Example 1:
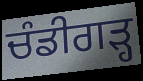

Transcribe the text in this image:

ਚੰਡੀਗੜ੍ਹ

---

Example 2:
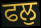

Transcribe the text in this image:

ਫਲੁ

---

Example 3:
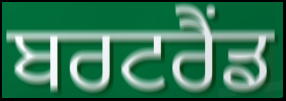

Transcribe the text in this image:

ਬਰਟਰੈਂਡ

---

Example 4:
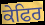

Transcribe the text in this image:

ਕੇਫਿਰ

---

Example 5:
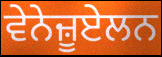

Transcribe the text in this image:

ਵੇਨੇਜ਼ੂਏਲਨ